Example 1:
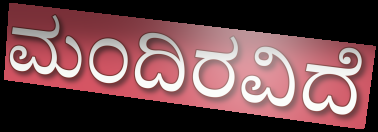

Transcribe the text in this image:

ಮಂದಿರವಿದೆ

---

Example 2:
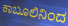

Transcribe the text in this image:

ಕಾಬೂಲಿನಿಂದ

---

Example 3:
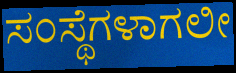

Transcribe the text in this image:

ಸಂಸ್ಥೆಗಳಾಗಲೀ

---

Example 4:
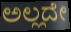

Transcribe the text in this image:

ಅಲ್ಲದೇ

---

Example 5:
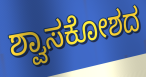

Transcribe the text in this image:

ಶ್ವಾಸಕೋಶದ